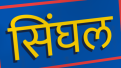
सिंघल